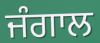
ਜੰਗਾਲ